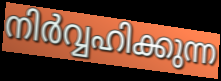
നിർവ്വഹിക്കുന്ന